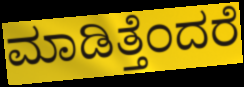
ಮಾಡಿತ್ತೆಂದರೆ